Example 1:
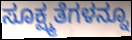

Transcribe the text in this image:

ಸೂಕ್ಷ್ಮತೆಗಳನ್ನೂ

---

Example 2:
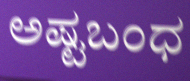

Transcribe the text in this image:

ಅಷ್ಟಬಂಧ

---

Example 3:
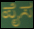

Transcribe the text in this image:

ಪೈಸ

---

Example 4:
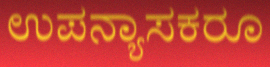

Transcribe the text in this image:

ಉಪನ್ಯಾಸಕರೂ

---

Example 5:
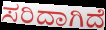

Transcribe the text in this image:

ಸರಿದಾಗಿದೆ